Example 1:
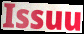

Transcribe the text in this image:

Issuu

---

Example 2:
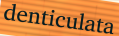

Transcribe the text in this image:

denticulata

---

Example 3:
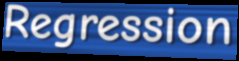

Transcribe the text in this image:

Regression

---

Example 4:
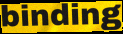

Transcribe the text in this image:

binding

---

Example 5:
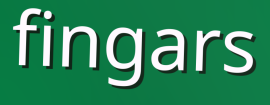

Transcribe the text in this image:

fingars